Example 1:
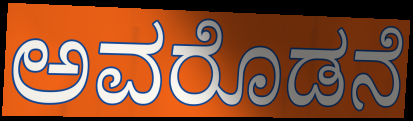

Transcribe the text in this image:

ಅವರೊಡನೆ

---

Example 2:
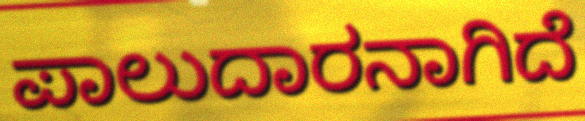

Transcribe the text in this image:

ಪಾಲುದಾರನಾಗಿದೆ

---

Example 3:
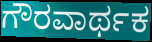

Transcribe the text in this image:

ಗೌರವಾರ್ಥಕ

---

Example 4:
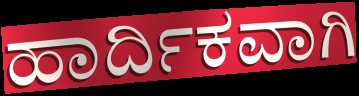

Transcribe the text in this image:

ಹಾರ್ದಿಕವಾಗಿ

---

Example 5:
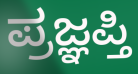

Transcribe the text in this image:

ಪ್ರಜ್ಞಪ್ತಿ